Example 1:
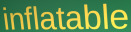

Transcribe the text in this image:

inflatable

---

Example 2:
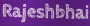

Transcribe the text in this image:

Rajeshbhai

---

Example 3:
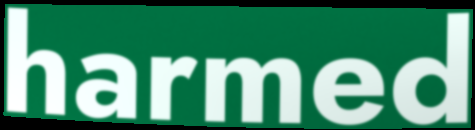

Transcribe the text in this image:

harmed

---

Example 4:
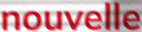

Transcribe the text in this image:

nouvelle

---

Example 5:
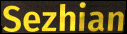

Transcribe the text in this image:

Sezhian